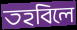
তহবিলে